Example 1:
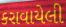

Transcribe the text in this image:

કરાવાયેલી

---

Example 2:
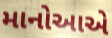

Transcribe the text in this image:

માનોઆએ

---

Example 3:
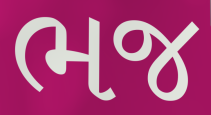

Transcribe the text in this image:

ભજ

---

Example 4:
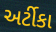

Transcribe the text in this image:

અર્ટીકા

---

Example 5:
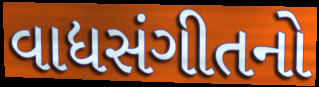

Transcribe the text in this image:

વાદ્યસંગીતનો